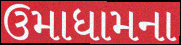
ઉમાધામના